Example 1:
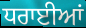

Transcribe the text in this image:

ਧਰਾਈਆਂ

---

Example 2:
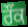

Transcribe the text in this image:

ਰੌਂਕ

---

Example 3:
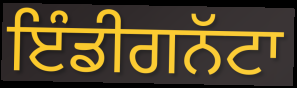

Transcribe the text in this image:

ਇੰਡੀਗਨੱਟਾ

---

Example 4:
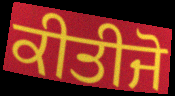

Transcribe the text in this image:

ਕੀਤੀਜੋ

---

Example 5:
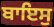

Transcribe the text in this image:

ਬਾਇਸੁ